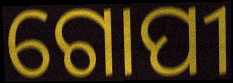
ଗୋପୀ